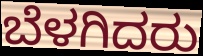
ಬೆಳಗಿದರು